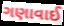
ગણાવાઈ